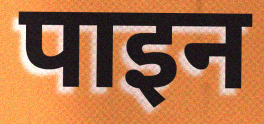
पाइन